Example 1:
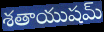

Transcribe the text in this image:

శతాయుషమ్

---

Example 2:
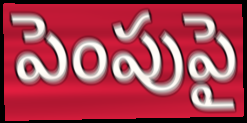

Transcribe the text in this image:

పెంపుపై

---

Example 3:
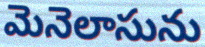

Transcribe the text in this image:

మెనెలాసును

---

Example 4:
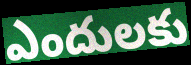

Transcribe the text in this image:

ఎందులకు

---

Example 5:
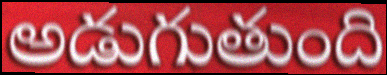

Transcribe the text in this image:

అడుగుతుంది